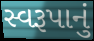
સ્વરૂપાનું